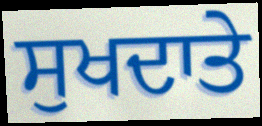
ਸੁਖਦਾਤੇ